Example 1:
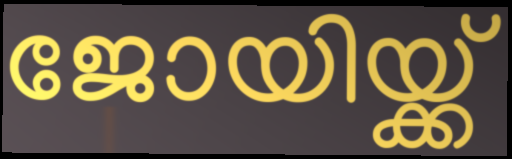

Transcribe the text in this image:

ജോയിയ്ക്ക്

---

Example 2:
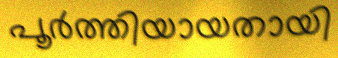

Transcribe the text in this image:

പൂർത്തിയായതായി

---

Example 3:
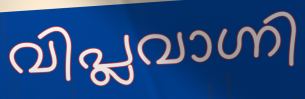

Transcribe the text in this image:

വിപ്ലവാഗ്നി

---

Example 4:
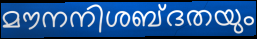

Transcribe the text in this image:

മൗനനിശബ്ദതയും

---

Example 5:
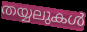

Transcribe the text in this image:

തയ്യലുകൾ